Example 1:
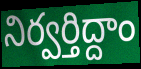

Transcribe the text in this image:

నిర్వర్తిద్దాం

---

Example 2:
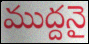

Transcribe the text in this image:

ముద్దనై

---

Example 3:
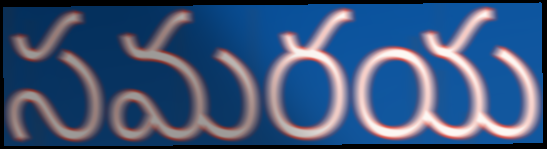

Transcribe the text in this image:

సమరయ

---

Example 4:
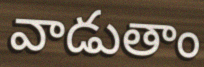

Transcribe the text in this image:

వాడుతాం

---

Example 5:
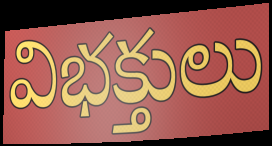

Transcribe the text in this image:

విభక్తులు